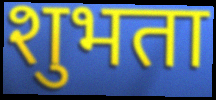
शुभता